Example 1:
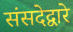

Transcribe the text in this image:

संसदेद्वारे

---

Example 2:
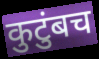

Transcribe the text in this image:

कुटुंबच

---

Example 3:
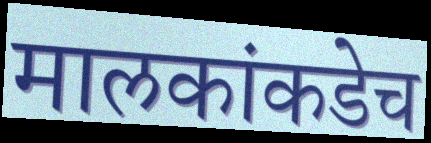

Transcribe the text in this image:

मालकांकडेच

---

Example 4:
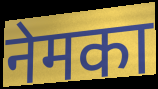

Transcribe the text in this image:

नेमका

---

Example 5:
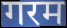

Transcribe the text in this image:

गरम